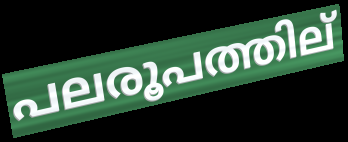
പലരൂപത്തില്